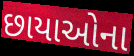
છાયાઓના